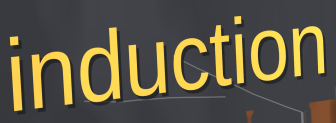
induction